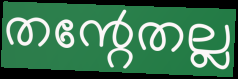
തന്റേതല്ല